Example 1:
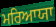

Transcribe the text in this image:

ਮਰਿਆਯਾ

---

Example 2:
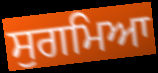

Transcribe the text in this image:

ਸੁਗਮਿਆ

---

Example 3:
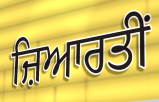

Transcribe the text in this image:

ਜ਼ਿਆਰਤੀਂ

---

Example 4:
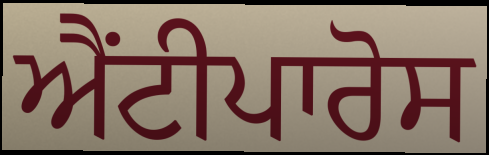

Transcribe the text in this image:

ਐਂਟੀਪਾਰੋਸ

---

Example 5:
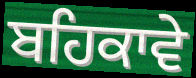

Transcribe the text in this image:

ਬਹਿਕਾਵੇ